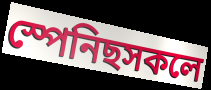
স্পেনিছসকলে